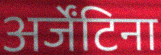
अर्जेंटिना